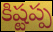
కిష్టప్ప